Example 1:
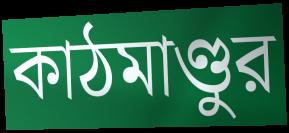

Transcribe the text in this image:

কাঠমাণ্ডুর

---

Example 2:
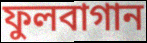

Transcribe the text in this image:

ফুলবাগান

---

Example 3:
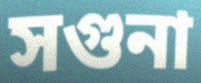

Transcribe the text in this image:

সগুনা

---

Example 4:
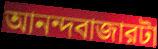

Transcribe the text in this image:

আনন্দবাজারটা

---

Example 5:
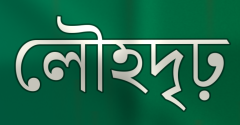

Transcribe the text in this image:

লৌহদৃঢ়